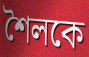
শৈলকে